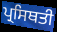
ਪ੍ਰਸਿਥਤੀ